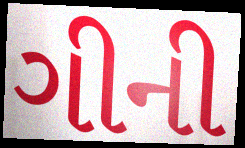
ગીની